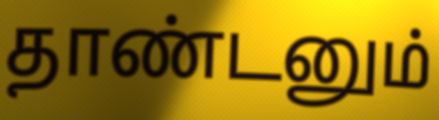
தாண்டனும்